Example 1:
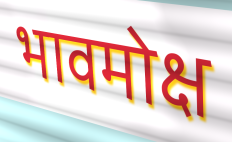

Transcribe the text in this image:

भावमोक्ष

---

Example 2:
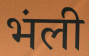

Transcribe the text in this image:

भंली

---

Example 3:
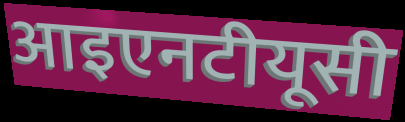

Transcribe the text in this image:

आइएनटीयूसी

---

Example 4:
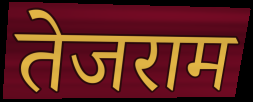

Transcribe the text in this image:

तेजराम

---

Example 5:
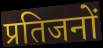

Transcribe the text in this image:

प्रतिजनों